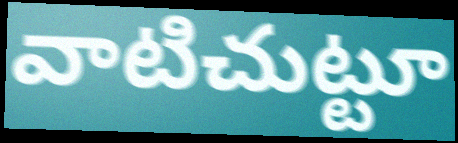
వాటిచుట్టూ